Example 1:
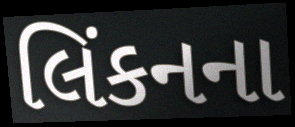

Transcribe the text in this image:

લિંકનના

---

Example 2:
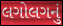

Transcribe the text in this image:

લગોલગનું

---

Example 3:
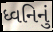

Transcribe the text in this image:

ધ્વનિનું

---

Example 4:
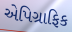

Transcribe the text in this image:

એપિગ્રાફિક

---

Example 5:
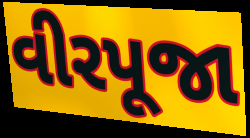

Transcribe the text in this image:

વીરપૂજા